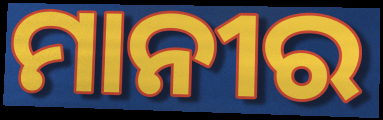
ମାନୀର